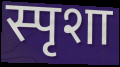
स्पृशा